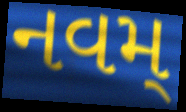
નવમ્